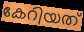
കേറിയത്